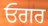
ਓਗਰ